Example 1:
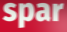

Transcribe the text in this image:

spar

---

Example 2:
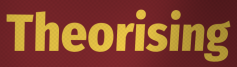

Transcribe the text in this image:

Theorising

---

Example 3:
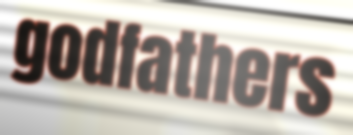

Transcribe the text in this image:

godfathers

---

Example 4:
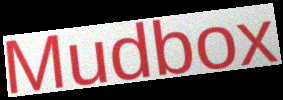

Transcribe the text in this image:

Mudbox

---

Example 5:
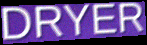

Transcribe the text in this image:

DRYER